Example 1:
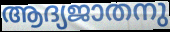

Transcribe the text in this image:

ആദ്യജാതനു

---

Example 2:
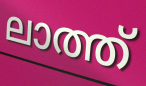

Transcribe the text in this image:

ലാത്ത്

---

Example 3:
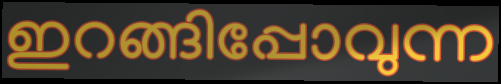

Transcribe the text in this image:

ഇറങ്ങിപ്പോവുന്ന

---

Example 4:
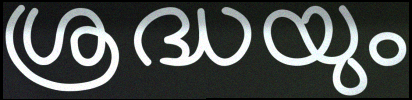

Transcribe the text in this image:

ശ്രദ്ധയും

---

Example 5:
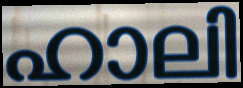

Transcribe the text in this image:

ഹാലി